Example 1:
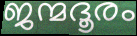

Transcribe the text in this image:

ജന്മദൂരം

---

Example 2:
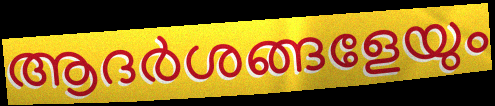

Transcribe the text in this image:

ആദർശങ്ങളേയും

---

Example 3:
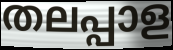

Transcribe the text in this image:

തലപ്പാള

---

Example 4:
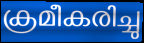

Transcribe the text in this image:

ക്രമീകരിച്ചു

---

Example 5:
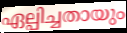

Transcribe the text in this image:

ഏല്പിച്ചതായും